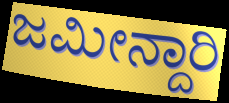
ಜಮೀನ್ದಾರಿ